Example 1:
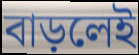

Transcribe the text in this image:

বাড়লেই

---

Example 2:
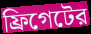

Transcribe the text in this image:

ফ্রিগেটের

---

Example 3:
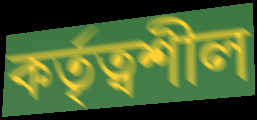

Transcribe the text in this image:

কর্তৃত্বশীল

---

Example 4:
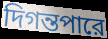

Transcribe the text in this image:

দিগন্তপারে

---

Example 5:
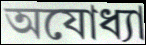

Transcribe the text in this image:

অযোধ্যা